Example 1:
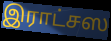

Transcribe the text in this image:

இராட்சஸ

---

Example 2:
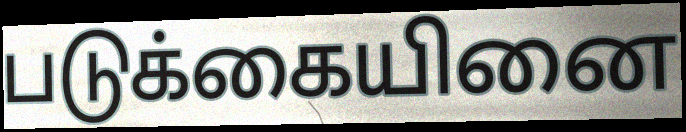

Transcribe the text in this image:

படுக்கையினை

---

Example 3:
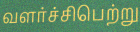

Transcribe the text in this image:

வளர்ச்சிபெற்று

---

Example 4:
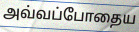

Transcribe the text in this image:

அவ்வப்போதைய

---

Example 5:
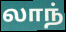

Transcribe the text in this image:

லாந்